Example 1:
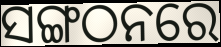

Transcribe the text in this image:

ସଙ୍ଗଠନରେ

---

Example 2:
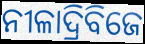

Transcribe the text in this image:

ନୀଳାଦ୍ରିବିଜେ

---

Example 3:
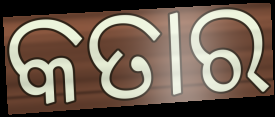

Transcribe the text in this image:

କତାର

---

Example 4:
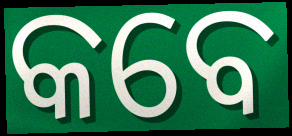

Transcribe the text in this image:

କବେ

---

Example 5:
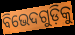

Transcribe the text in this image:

ବିଭେଦଗୁଡ଼ିକୁ